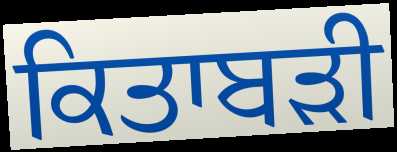
ਕਿਤਾਬੜੀ